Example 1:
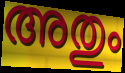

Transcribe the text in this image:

അതും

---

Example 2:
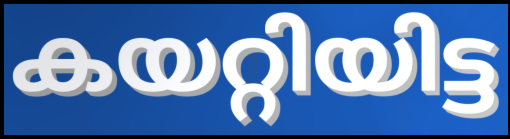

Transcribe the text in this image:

കയറ്റിയിട്ട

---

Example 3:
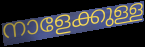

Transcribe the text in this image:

നാളേക്കുള്ള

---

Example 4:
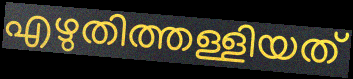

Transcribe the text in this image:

എഴുതിത്തള്ളിയത്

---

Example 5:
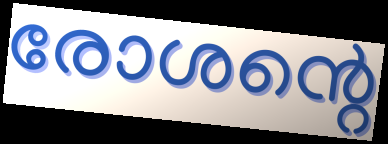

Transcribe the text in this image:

രോശന്റെ